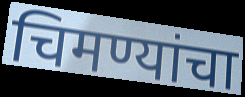
चिमण्यांचा